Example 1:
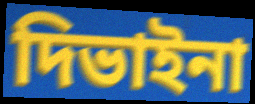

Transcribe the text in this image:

দিভাইনা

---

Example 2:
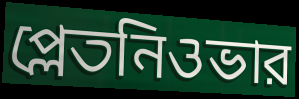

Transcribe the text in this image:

প্লেতনিওভার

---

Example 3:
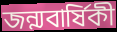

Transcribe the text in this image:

জন্মবার্ষিকী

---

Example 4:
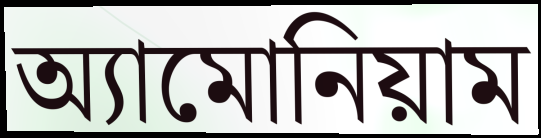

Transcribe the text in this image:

অ্যামোনিয়াম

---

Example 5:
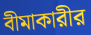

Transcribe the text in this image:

বীমাকারীর